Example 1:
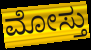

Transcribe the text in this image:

ಮೋಸ್ತು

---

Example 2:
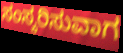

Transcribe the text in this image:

ಸಂಸ್ಕರಿಸುವಾಗ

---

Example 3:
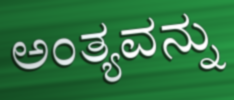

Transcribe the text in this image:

ಅಂತ್ಯವನ್ನು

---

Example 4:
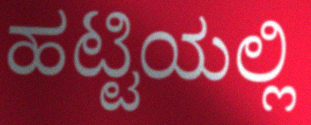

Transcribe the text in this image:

ಹಟ್ಟಿಯಲ್ಲಿ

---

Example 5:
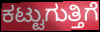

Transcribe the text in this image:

ಕಟ್ಟುಗುತ್ತಿಗೆ